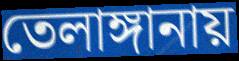
তেলাঙ্গানায়